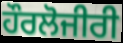
ਹੌਰਲੋਜੀਰੀ